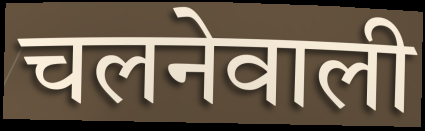
चलनेवाली